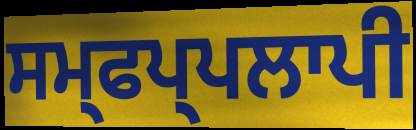
ਸਮ੍ਫਪ੍ਪਲਾਪੀ